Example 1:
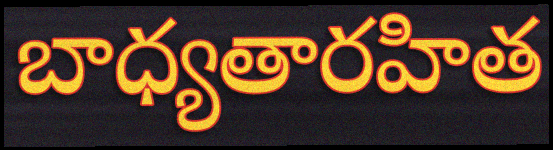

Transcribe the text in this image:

బాధ్యతారహిత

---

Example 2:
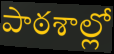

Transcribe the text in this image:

పాఠశాల్లో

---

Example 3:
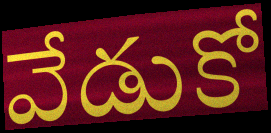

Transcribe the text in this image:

వేడుకో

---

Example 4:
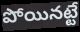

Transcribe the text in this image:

పోయినట్టే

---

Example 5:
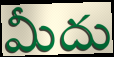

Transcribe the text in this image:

మీదు